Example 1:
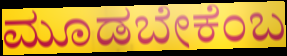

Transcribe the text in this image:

ಮೂಡಬೇಕೆಂಬ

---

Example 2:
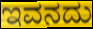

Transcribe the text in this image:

ಇವನದು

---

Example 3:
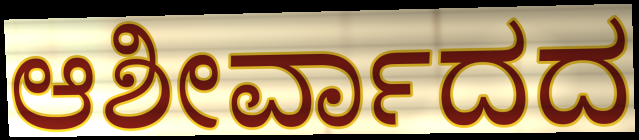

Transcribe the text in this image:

ಆಶೀರ್ವಾದದ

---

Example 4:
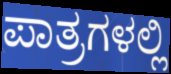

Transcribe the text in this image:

ಪಾತ್ರಗಳಲ್ಲಿ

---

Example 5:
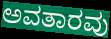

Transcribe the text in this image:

ಅವತಾರವು